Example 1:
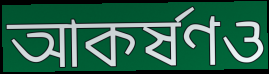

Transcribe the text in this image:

আকর্ষণও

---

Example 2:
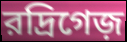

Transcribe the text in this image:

রদ্রিগেজ়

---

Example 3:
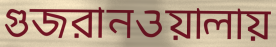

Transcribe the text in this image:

গুজরানওয়ালায়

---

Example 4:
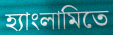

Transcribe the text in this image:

হ্যাংলামিতে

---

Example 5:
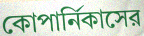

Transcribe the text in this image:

কোপার্নিকাসের